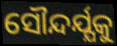
ସୌନ୍ଦର୍ଯ୍ଯକୁ